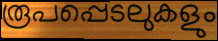
രൂപപ്പെടലുകളും